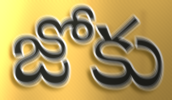
జోకు